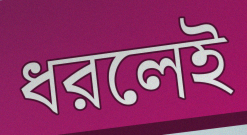
ধরলেই